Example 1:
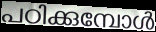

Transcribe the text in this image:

പഠിക്കുമ്പോൾ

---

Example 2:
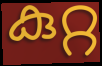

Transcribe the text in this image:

കുറ്റ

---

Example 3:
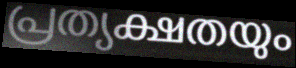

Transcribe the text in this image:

പ്രത്യക്ഷതയും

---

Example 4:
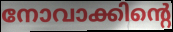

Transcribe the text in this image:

നോവാക്കിന്റെ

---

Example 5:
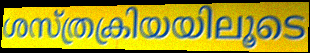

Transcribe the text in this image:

ശസ്ത്രക്രിയയിലൂടെ